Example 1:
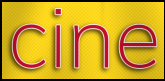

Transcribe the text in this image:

cine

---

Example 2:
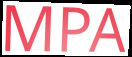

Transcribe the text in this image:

MPA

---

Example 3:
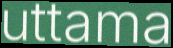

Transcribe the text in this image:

uttama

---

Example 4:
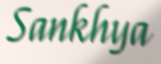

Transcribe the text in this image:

Sankhya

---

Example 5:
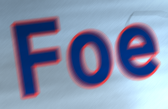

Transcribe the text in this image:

Foe